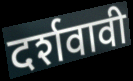
दर्शवावी